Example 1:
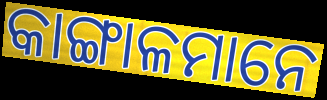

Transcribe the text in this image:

କାଙ୍ଗାଳମାନେ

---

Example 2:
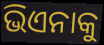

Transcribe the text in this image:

ଭିଏନାକୁ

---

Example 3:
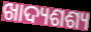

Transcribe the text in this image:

ଖାଦ୍ୟଶଶ୍ୟ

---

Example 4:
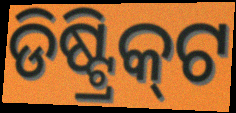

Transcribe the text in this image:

ଡିଷ୍ଟ୍ରିକ୍‌ଟ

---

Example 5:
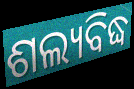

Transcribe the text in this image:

ଶଲ୍ୟବିଦ୍ଧ